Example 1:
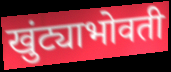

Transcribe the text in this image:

खुंट्याभोवती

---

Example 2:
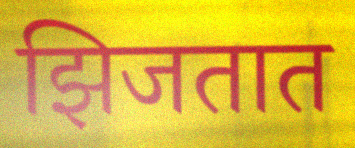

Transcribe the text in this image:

झिजतात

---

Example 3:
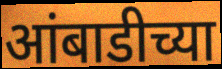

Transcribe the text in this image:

आंबाडीच्या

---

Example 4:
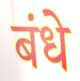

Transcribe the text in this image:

बंधे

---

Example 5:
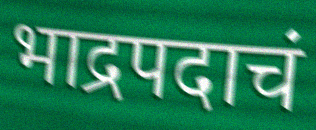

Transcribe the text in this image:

भाद्रपदाचं